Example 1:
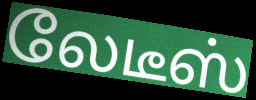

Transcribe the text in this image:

லேடீஸ்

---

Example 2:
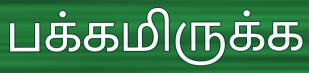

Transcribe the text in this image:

பக்கமிருக்க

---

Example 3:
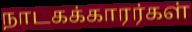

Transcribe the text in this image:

நாடகக்காரர்கள்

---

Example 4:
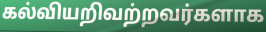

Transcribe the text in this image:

கல்வியறிவற்றவர்களாக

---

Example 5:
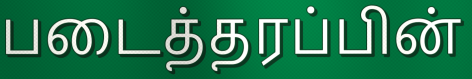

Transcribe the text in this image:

படைத்தரப்பின்